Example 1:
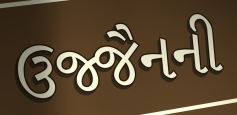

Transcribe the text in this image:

ઉજ્જૈનની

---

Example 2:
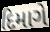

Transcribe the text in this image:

દિમાગે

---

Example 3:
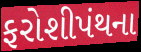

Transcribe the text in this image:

ફરોશીપંથના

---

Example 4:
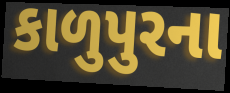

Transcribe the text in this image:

કાળુપુરના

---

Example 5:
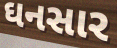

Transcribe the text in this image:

ઘનસાર